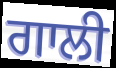
ਗਾਲੀ